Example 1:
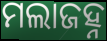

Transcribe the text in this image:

ମଲାଜହ୍ନ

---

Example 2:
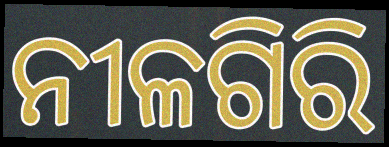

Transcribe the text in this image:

ନୀଳଗିରି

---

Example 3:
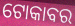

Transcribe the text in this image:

ଟୋକାବର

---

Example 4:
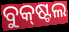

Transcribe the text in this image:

ବୁକ୍‌ଷ୍ଟଲ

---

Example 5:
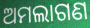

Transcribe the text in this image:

ଅମଲାଗଣ